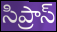
సిప్రాస్